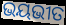
ଭୟଭୀତ